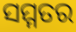
ସମ୍ମତର